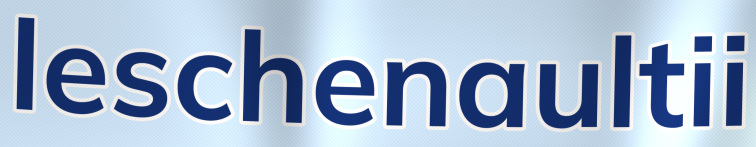
leschenaultii